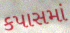
કપાસમાં